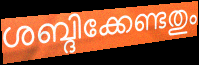
ശബ്ദിക്കേണ്ടതും